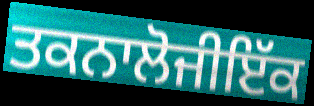
ਤਕਨਾਲੋਜੀਇੱਕ